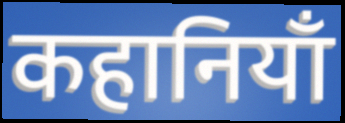
कहानियाँ